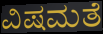
ವಿಷಮತೆ